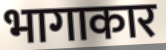
भागाकार